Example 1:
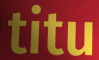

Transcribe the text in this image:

titu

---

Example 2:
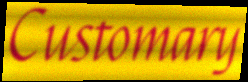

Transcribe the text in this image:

Customary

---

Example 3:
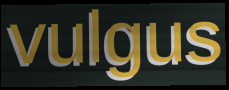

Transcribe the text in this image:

vulgus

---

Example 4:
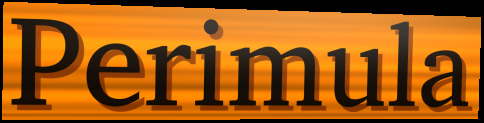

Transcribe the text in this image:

Perimula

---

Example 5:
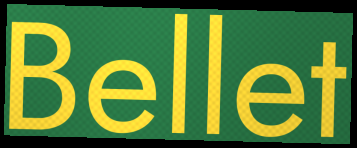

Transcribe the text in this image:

Bellet